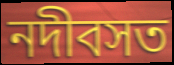
নদীবসত